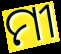
ମୀ